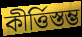
কীর্ত্তিস্তম্ভ